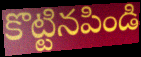
కొట్టినపిండి